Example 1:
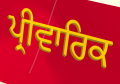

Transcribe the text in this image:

ਪ੍ਰੀਵਾਰਿਕ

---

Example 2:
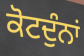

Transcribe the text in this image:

ਕੋਟਦੁੰਨਾਂ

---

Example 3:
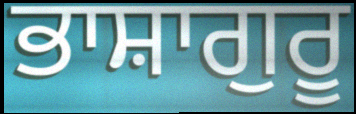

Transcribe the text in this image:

ਭਾਸ਼ਾਗੁਰੂ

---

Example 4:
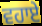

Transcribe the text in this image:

ਵਹਾਏ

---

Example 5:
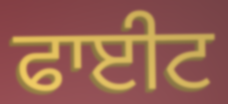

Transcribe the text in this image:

ਫਾਈਟ